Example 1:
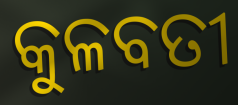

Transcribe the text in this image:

କୁଳବତୀ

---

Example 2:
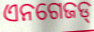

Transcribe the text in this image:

ଏନଗେଜଡ୍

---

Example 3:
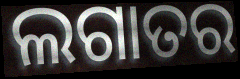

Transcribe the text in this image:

ଲଗାତର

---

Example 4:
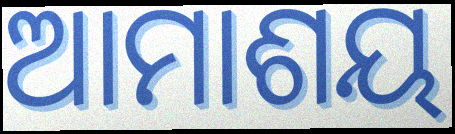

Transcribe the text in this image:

ଆମାଶୟ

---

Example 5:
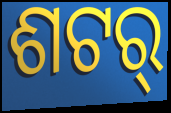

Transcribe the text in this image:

ଶଟର୍